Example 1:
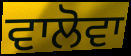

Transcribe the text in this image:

ਵਾਲੋਵਾ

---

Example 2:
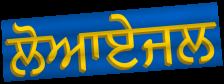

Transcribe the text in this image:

ਲੋਆਏਜਲ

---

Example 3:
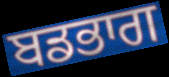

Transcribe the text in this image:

ਬਡਭਾਗ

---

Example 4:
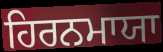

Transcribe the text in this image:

ਹਿਰਨਮਾਯਾ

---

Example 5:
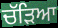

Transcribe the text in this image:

ਚੱੜਿਆ